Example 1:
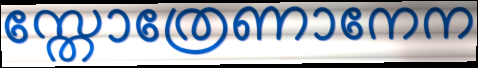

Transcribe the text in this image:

സ്തോത്രേണാനേന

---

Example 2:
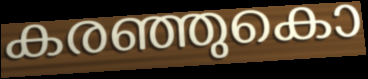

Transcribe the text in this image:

കരഞ്ഞുകൊ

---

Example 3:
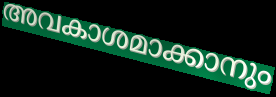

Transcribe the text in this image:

അവകാശമാക്കാനും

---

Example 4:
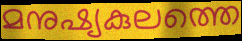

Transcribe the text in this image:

മനുഷ്യകുലത്തെ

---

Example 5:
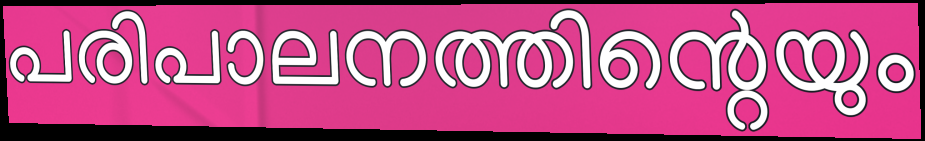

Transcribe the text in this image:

പരിപാലനത്തിന്റെയും